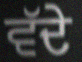
ਵੱਦੇ